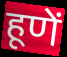
हूणें